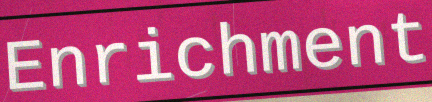
Enrichment